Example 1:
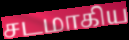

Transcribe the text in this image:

சடமாகிய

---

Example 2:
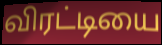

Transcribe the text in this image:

விரட்டியை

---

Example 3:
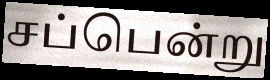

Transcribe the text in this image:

சப்பென்று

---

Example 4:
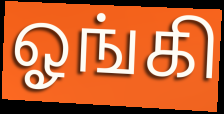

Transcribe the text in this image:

ஓங்கி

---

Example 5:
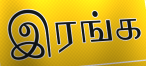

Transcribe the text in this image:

இரங்க